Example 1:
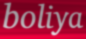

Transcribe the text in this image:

boliya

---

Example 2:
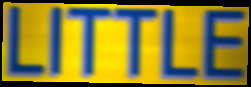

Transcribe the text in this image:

LITTLE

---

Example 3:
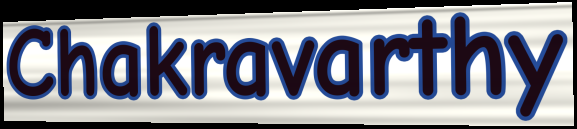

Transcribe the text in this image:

Chakravarthy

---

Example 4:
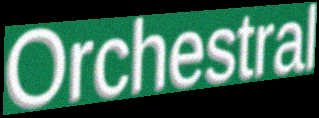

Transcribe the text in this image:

Orchestral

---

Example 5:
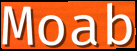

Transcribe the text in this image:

Moab